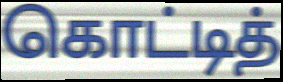
கொட்டித்